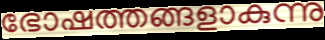
ഭോഷത്തങ്ങളാകുന്നു